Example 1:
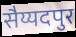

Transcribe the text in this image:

सैय्यदपुर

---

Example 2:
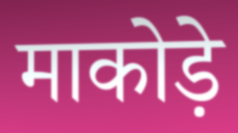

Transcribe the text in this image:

माकोड़े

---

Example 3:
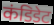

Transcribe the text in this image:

कंडिडेट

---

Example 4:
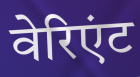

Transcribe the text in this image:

वेरिएंट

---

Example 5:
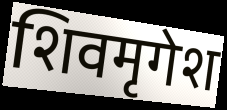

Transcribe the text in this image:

शिवमृगेश